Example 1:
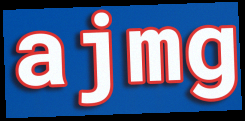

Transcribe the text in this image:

ajmg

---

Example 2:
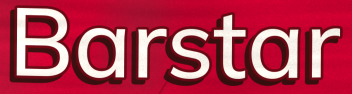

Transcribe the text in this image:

Barstar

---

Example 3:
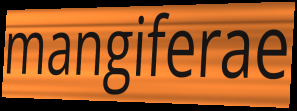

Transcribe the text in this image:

mangiferae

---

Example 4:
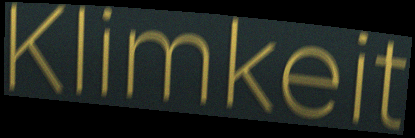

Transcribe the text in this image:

Klimkeit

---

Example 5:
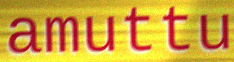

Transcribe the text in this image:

amuttu